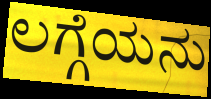
ಲಗ್ಗೆಯನು